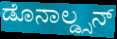
ಡೊನಾಲ್ಡ್ಸನ್